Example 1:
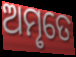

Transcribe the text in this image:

ଅମୃତେ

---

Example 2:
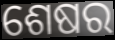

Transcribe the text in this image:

ଶେଷର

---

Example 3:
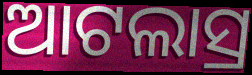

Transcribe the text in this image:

ଆଟଲାସ୍ର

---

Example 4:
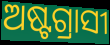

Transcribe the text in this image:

ଅଷ୍ଟଗ୍ରାସୀ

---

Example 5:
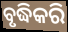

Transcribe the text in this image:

ବୃଦ୍ଧିକରି